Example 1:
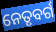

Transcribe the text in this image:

ନେତୃବର୍ଗ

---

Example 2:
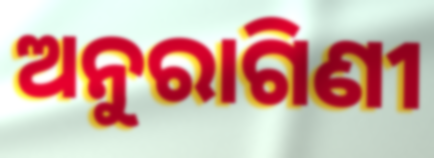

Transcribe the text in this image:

ଅନୁରାଗିଣୀ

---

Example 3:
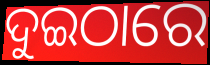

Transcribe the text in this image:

ଦୁଇଠାରେ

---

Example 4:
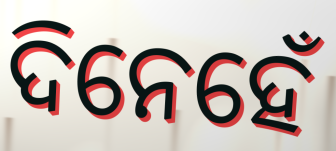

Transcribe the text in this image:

ଦିନେହେଁ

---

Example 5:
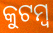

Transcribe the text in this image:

କୁଟମ୍ୱ